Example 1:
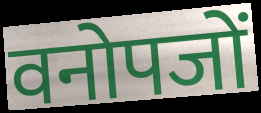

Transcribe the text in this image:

वनोपजों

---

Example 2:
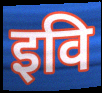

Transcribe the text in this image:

इवि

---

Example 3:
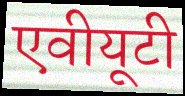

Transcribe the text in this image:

एवीयूटी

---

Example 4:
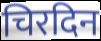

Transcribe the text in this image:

चिरदिन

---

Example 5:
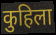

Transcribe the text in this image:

कुहिला